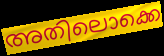
അതിലൊക്കെ